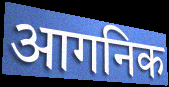
आगनिक